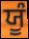
ਯੂੰ